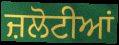
ਜ਼ਲੋਟੀਆਂ